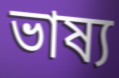
ভাষ্য